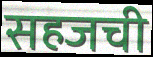
सहजची